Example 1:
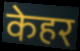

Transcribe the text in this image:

केहर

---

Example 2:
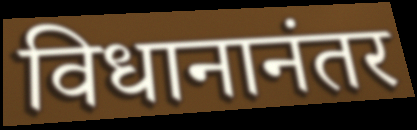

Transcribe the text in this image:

विधानानंतर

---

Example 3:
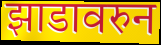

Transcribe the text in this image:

झाडावरुन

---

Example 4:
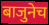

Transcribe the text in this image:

बाजुनेच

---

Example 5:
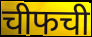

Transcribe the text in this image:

चीफची